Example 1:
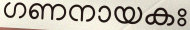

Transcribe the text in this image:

ഗണനായകഃ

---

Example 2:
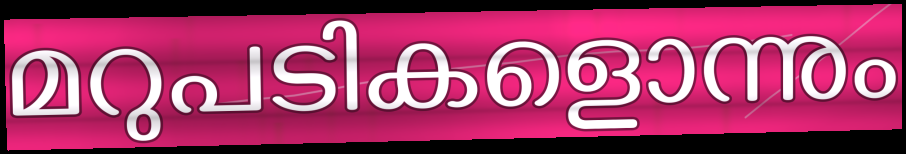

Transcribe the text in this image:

മറുപടികളൊന്നും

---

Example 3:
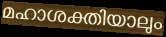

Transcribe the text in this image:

മഹാശക്തിയാലും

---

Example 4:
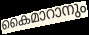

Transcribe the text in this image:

കൈമാറാനും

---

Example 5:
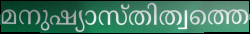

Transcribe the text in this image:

മനുഷ്യാസ്തിത്വത്തെ